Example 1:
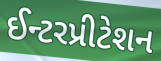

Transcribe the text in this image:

ઈન્ટરપ્રીટેશન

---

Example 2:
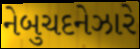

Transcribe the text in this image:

નેબુચદનેઝારે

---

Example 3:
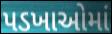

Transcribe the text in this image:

પડખાઓમાં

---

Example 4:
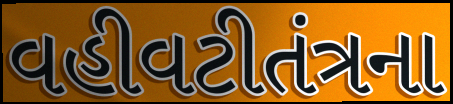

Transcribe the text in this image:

વહીવટીતંત્રના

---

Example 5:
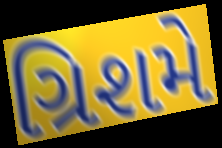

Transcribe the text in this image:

ગ્રિશમે